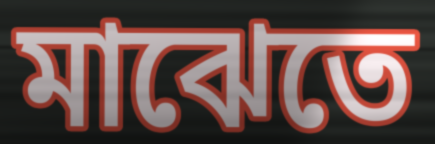
মাঝেতে